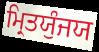
ਮ੍ਰਿਤਯੁੰਜਯ